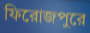
ফিরোজপুরে